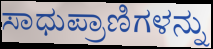
ಸಾಧುಪ್ರಾಣಿಗಳನ್ನು